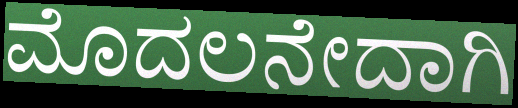
ಮೊದಲನೇದಾಗಿ